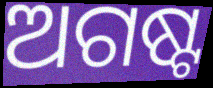
ଅଗଷ୍ଟ